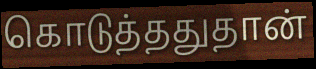
கொடுத்ததுதான்